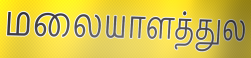
மலையாளத்துல